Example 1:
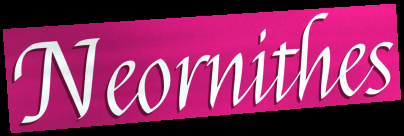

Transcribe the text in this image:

Neornithes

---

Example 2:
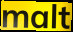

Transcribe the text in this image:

malt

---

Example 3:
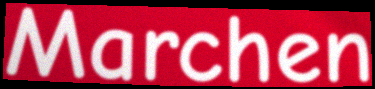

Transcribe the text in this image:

Marchen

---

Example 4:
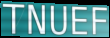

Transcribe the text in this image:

TNUEF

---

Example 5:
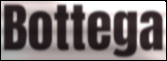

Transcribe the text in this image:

Bottega